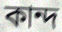
কান্দ